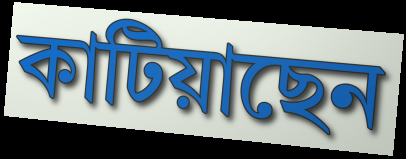
কাটিয়াছেন